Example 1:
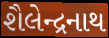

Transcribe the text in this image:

શૈલેન્દ્રનાથ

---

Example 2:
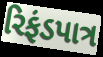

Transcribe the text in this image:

રિફંડપાત્ર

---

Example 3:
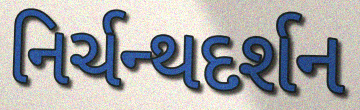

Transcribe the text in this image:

નિર્ચન્થદર્શન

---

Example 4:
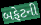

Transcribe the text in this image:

બફેટની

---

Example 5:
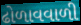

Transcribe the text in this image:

ઢોળાવવાળી